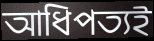
আধিপত্যই